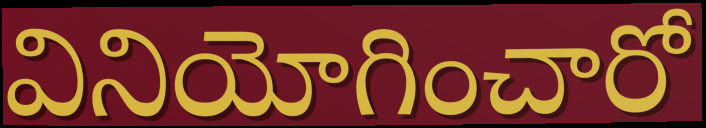
వినియోగించారో